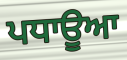
ਪਧਾਊਆ